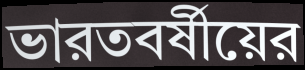
ভারতবর্ষীয়ের